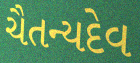
ચૈતન્યદેવ